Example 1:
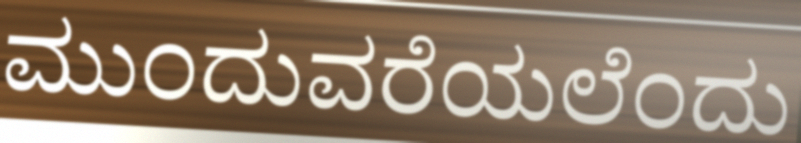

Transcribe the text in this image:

ಮುಂದುವರೆಯಲೆಂದು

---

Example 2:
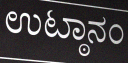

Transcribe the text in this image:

ಉಟ್ಠಾನಂ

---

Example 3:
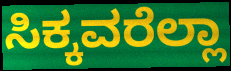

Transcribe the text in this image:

ಸಿಕ್ಕವರೆಲ್ಲಾ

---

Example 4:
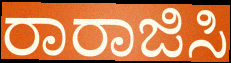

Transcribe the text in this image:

ರಾರಾಜಿಸಿ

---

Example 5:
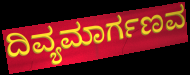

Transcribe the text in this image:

ದಿವ್ಯಮಾರ್ಗಣವ